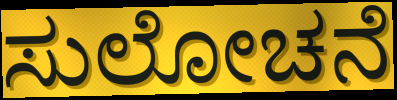
ಸುಲೋಚನೆ